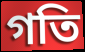
গতি